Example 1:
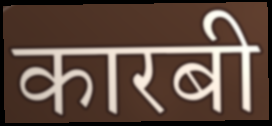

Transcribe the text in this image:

कारबी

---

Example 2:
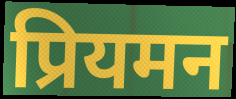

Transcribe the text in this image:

प्रियमन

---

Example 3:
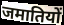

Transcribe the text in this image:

जमातियों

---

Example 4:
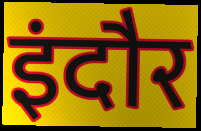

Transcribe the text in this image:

इंदौर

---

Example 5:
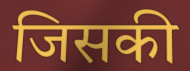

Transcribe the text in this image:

जिसकी